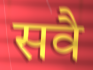
सवै